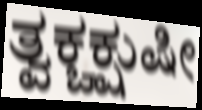
ತ್ವಕ್ಚಕ್ಷುಷೀ